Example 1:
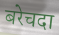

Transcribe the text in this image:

बरेचदा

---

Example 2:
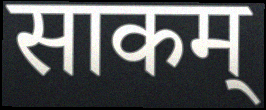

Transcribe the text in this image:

साकम्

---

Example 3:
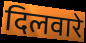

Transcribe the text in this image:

दिलवारे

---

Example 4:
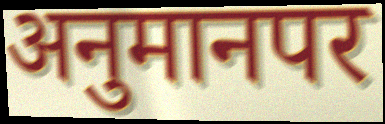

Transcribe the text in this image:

अनुमानपर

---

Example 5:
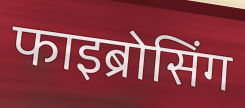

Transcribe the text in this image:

फाइब्रोसिंग